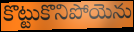
కొట్టుకొనిపోయెను